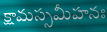
క్షామస్సమీహనః